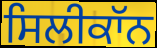
ਸਿਲੀਕਾੱਨ